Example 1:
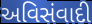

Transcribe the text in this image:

અવિસંવાદી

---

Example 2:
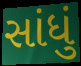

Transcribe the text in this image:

સાંધું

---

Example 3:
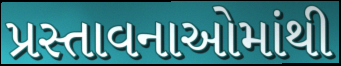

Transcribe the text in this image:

પ્રસ્તાવનાઓમાંથી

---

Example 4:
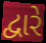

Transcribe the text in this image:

દ્વારે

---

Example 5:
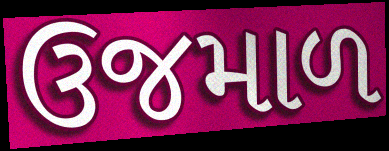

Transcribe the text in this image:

ઉજમાળ